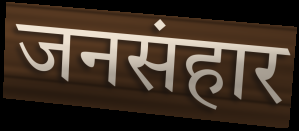
जनसंहार